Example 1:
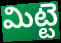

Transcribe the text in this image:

మిట్టె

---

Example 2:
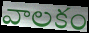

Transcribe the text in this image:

వాలకం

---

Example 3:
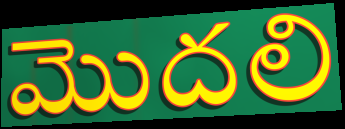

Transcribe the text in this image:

మొదలి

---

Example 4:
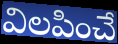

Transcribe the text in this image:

విలపించే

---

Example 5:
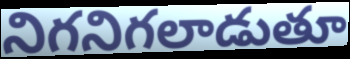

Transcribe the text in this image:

నిగనిగలాడుతూ